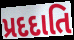
પ્રદદાતિ